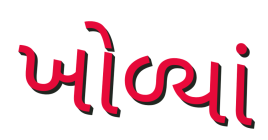
ખોળ્યાં